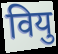
वियु